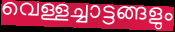
വെള്ളച്ചാട്ടങ്ങളും